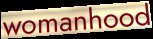
womanhood